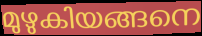
മുഴുകിയങ്ങനെ